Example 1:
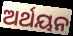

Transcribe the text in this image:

ଅର୍ଥୟନ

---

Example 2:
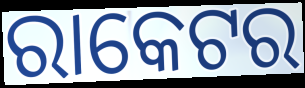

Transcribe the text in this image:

ରାକେଟର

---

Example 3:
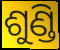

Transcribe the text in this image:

ଶୁଣ୍ଡି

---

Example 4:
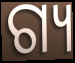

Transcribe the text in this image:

ଗ୍ଯ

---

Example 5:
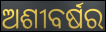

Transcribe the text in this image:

ଅଶୀବର୍ଷର